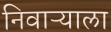
निवाऱ्याला